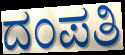
ದಂಪತಿ